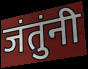
जंतुंनी